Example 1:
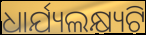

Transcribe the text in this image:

ଧାର୍ଯ୍ୟଲକ୍ଷ୍ୟଟି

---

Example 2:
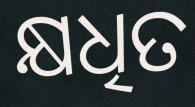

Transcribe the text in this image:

କ୍ଷଧିତ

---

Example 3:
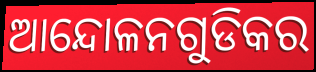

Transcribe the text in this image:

ଆନ୍ଦୋଳନଗୁଡିକର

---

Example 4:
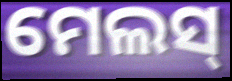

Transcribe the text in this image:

ମେଲସ୍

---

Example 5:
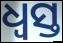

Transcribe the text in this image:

ଧ୍ବସ୍ତ